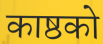
काष्ठको